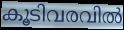
കൂടിവരവിൽ